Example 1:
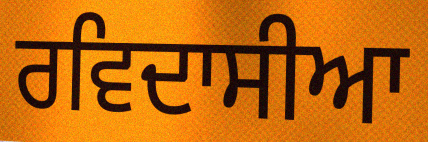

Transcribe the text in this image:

ਰਵਿਦਾਸੀਆ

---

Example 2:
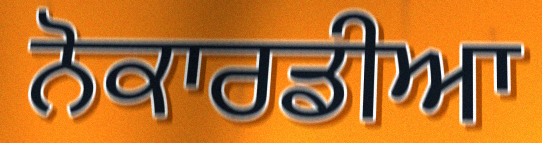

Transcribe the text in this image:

ਨੋਕਾਰਡੀਆ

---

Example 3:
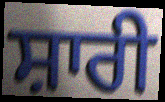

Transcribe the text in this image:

ਸ਼ਾਰੀ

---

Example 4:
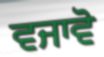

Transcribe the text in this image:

ਵਜਾਵੋ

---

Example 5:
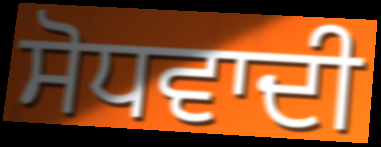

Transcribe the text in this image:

ਸੋਧਵਾਦੀ